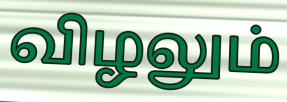
விழலும்